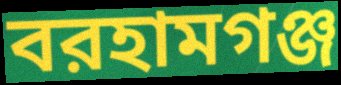
বরহামগঞ্জ